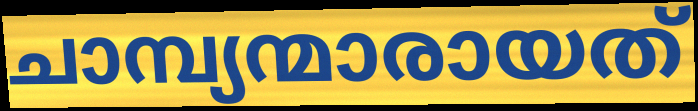
ചാമ്പ്യന്മാരായത്